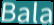
Bala